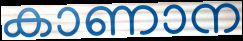
കാണാന